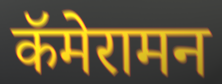
कॅमेरामन